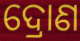
ଦ୍ରୋଣ